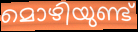
മൊഴിയുണ്ട്